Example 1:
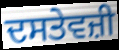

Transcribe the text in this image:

ਦਸਤੇਵਜ਼ੀ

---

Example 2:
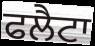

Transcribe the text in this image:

ਫਲੈਟਾ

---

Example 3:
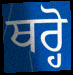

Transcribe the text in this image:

ਥਰ੍ਹੋ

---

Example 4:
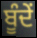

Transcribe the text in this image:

ਬੂੰਦੇਂ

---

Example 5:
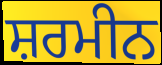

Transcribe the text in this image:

ਸ਼ਰਮੀਨ